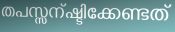
തപസ്സന്ഷ്ടിക്കേണ്ടത്